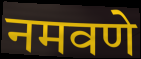
नमवणे